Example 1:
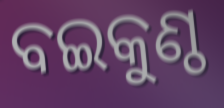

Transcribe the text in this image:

ବଇକୁଣ୍ଠ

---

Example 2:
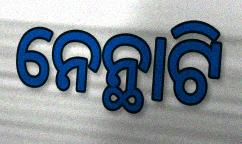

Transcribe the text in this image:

ନେନ୍ଥାଟି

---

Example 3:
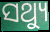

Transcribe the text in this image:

ସଥ୍ୟୁ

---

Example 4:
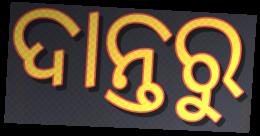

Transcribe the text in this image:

ଦାନ୍ତରୁ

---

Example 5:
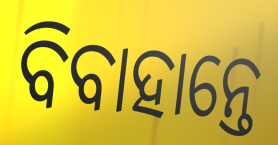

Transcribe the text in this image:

ବିବାହାନ୍ତେ